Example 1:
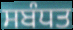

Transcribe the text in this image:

ਸਬੰਧਤ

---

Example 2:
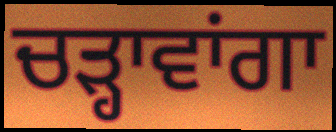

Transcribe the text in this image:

ਚੜ੍ਹਾਵਾਂਗਾ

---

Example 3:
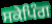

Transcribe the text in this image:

ਸਕੇਪਿੰਗ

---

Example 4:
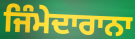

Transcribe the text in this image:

ਜਿੰਮੇਦਾਰਾਨਾ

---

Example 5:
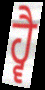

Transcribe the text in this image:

ਹ੍ਵੈ